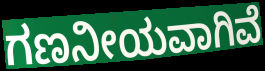
ಗಣನೀಯವಾಗಿವೆ